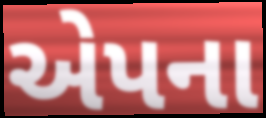
એપના